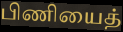
பிணியைத்